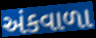
અંકવાળા